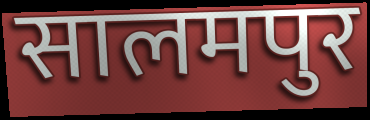
सालमपुर